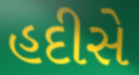
હદીસે